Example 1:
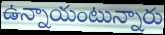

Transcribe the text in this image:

ఉన్నాయంటున్నారు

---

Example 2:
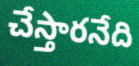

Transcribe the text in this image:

చేస్తారనేది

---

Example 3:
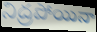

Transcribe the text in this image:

నిద్రపోయినా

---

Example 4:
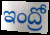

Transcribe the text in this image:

ఇంద్రో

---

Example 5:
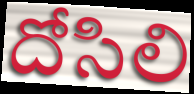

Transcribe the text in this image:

దోసిలి